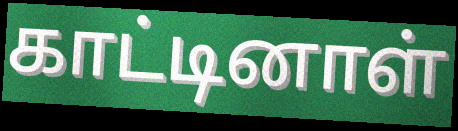
காட்டினாள்